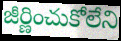
జీర్ణించుకోలేని